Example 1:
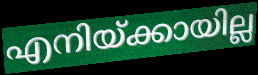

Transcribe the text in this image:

എനിയ്ക്കായില്ല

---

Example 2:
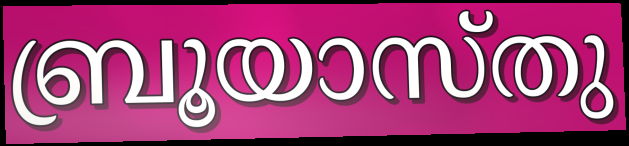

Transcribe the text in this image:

ബ്രൂയാസ്തു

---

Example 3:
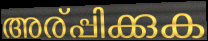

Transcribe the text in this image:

അര്പ്പിക്കുക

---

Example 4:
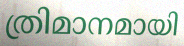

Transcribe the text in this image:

ത്രിമാനമായി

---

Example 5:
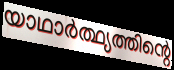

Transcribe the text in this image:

യാഥാർത്ഥ്യത്തിന്റെ